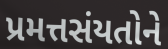
પ્રમત્તસંયતોને